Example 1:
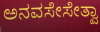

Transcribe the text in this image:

ಅನವಸೇಸೇತ್ವಾ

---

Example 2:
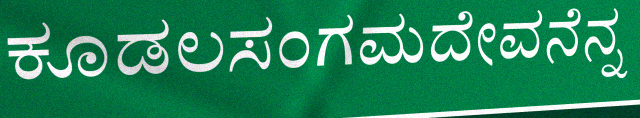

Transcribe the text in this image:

ಕೂಡಲಸಂಗಮದೇವನೆನ್ನ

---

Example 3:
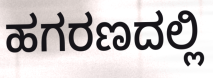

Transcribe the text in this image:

ಹಗರಣದಲ್ಲಿ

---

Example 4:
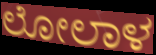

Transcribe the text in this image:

ಲೋಲಾಳ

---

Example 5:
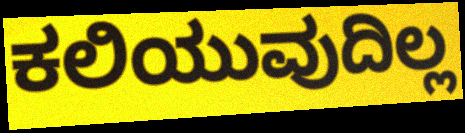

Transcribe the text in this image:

ಕಲಿಯುವುದಿಲ್ಲ